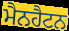
ਮੈਨਹੈਟਨ